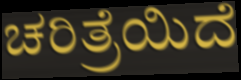
ಚರಿತ್ರೆಯಿದೆ